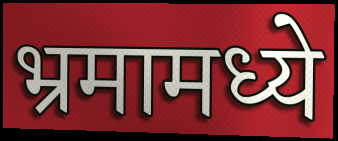
भ्रमामध्ये